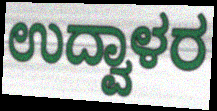
ಉದ್ವಾಳರ